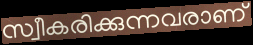
സ്വീകരിക്കുന്നവരാണ്